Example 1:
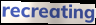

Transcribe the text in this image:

recreating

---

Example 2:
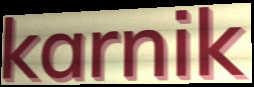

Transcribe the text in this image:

karnik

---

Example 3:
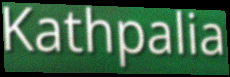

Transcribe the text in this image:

Kathpalia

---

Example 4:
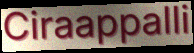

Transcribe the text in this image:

Ciraappalli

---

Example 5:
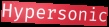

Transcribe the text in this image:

Hypersonic